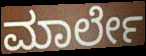
ಮಾರ್ಲೇ